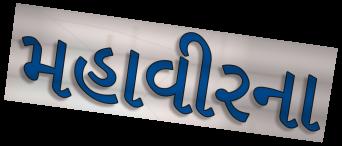
મહાવીરના